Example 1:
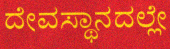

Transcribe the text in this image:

ದೇವಸ್ಥಾನದಲ್ಲೇ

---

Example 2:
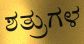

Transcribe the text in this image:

ಶತ್ರುಗಳ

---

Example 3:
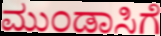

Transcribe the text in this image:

ಮುಂಡಾಸಿಗೆ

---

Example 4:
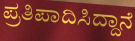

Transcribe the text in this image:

ಪ್ರತಿಪಾದಿಸಿದ್ದಾನೆ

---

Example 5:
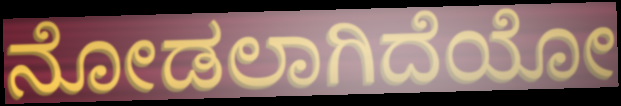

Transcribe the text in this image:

ನೋಡಲಾಗಿದೆಯೋ